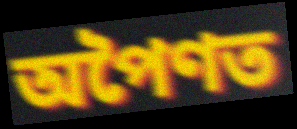
অপৈণত